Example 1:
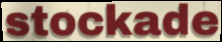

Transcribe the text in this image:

stockade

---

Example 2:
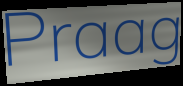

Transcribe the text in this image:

Praag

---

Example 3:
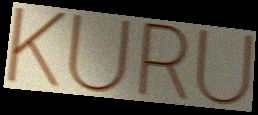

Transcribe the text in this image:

KURU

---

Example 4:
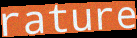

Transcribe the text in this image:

rature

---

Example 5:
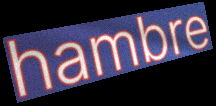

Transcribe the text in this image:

hambre